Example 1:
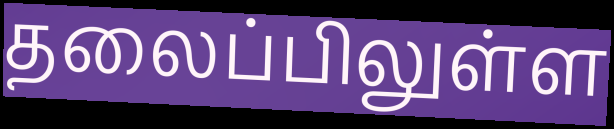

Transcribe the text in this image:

தலைப்பிலுள்ள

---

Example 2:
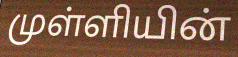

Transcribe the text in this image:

முள்ளியின்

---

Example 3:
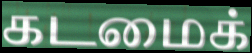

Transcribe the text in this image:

கடமைக்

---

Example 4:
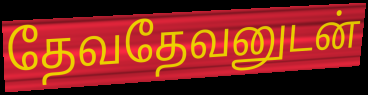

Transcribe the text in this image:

தேவதேவனுடன்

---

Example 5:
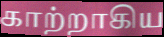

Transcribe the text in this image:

காற்றாகிய